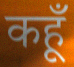
कहूँ